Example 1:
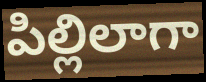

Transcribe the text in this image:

పిల్లిలాగా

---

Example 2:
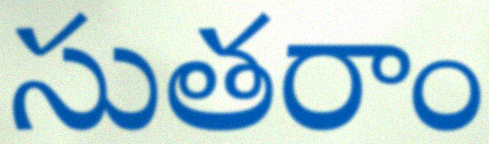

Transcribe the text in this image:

సుతరాం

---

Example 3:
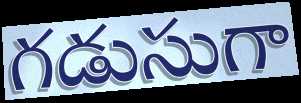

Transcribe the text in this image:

గడుసుగా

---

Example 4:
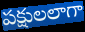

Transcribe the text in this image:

పక్షులలాగా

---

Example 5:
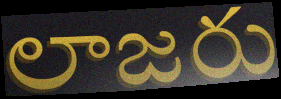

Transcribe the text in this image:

లాజరు